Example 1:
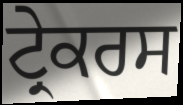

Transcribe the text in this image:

ਟ੍ਰੇਕਰਸ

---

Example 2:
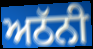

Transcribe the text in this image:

ਅਠੱਨੀ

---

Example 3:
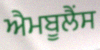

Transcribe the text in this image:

ਐਮਬੂਲੈਂਸ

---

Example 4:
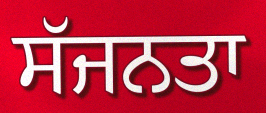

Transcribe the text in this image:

ਸੱਜਨਤਾ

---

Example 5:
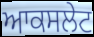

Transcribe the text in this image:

ਆਕਸਲੇਟ